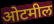
ओटमील